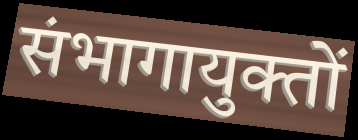
संभागायुक्तों